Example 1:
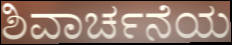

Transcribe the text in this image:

ಶಿವಾರ್ಚನೆಯ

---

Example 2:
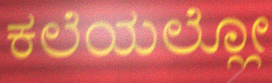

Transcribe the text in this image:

ಕಲೆಯಲ್ಲೋ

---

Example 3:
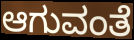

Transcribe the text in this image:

ಆಗುವಂತೆ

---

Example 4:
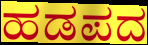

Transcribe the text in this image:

ಹಡಪದ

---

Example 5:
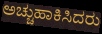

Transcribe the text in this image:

ಅಚ್ಚುಹಾಕಿಸಿದರು